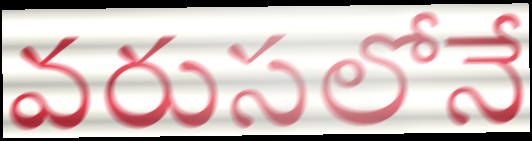
వరుసలోనే